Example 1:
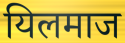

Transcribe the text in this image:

यिलमाज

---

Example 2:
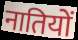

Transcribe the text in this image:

नातियों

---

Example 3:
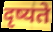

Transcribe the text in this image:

दृष्यते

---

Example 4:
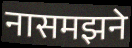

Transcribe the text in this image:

नासमझने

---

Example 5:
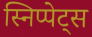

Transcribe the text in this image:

स्निप्पेट्स